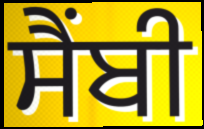
ਸੈਂਬੀ